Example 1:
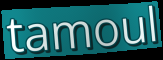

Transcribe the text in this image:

tamoul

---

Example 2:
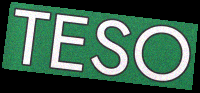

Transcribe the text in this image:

TESO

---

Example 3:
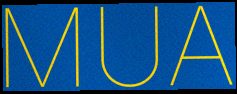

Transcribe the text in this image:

MUA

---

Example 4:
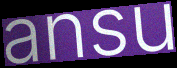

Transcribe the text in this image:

ansu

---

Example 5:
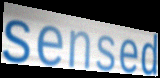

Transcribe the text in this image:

sensed